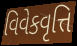
વિવેકવૃત્તિ